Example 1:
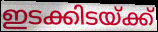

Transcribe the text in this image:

ഇടക്കിടയ്ക്ക്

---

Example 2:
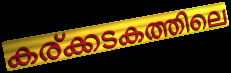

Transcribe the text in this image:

കര്ക്കടകത്തിലെ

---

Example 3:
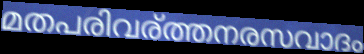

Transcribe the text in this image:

മതപരിവര്ത്തനരസവാദം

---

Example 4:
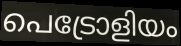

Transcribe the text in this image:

പെട്രോളിയം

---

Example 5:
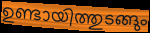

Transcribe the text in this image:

ഉണ്ടായിത്തുടങ്ങും